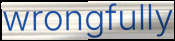
wrongfully